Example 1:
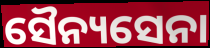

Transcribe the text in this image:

ସୈନ୍ୟସେନା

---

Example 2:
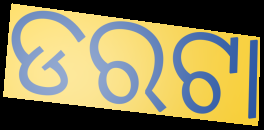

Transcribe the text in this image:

ଡରଟା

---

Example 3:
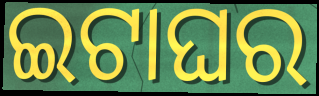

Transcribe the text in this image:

ଇଟାଘର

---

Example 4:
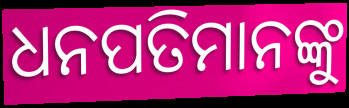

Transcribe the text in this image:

ଧନପତିମାନଙ୍କୁ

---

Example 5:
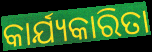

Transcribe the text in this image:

କାର୍ଯ୍ୟକାରିତା